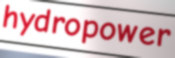
hydropower